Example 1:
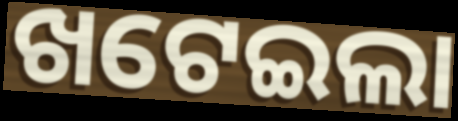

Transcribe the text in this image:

ଖଟେଇଲା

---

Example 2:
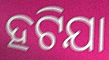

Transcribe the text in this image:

ହଟିଯା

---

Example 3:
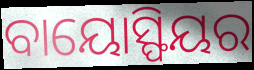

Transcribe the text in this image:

ବାୟୋସ୍ଫିୟର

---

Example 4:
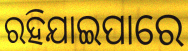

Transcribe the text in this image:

ରହିଯାଇପାରେ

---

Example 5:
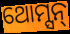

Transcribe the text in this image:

ଥୋମ୍ସନ୍